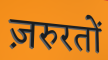
ज़रुरतों